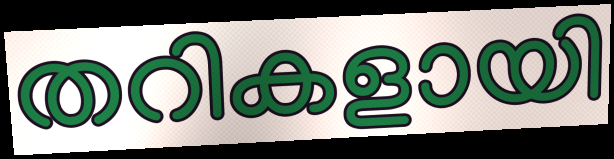
തറികളായി